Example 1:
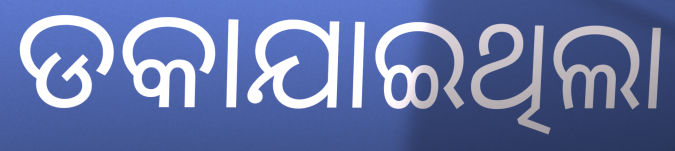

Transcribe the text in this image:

ଡକାଯାଇଥିଲା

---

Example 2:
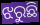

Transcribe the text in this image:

ଝରୁଛି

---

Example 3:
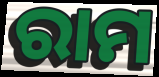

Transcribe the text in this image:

ରାମ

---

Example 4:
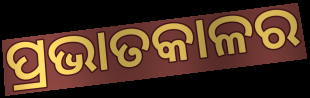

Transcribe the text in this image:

ପ୍ରଭାତକାଳର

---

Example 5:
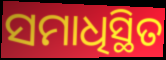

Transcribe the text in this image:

ସମାଧିସ୍ଥିତ